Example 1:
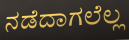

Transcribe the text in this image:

ನಡೆದಾಗಲೆಲ್ಲ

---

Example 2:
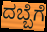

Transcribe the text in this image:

ದಬ್ಬೆಗೆ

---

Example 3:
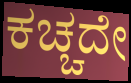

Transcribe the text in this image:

ಕಚ್ಚದೇ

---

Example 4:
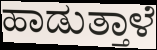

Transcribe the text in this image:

ಹಾಡುತ್ತಾಳೆ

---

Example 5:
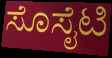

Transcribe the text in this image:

ಸೊಸೈಟಿ